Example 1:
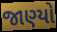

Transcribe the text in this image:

જાણ્યો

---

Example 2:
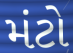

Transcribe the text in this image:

મંટો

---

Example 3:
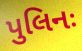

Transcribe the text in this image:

પુલિનઃ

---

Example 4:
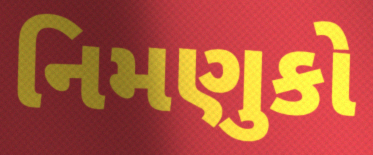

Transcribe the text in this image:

નિમણુકો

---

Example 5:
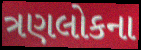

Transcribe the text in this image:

ત્રણલોકના